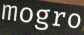
mogro